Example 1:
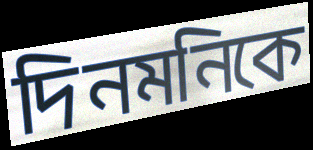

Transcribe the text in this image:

দিনমনিকে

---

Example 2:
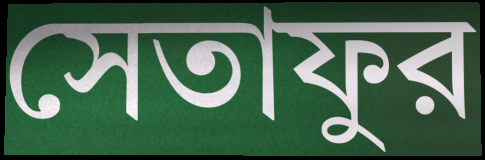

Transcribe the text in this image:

সেতাফুর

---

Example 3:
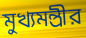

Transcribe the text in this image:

মুখ্যমন্ত্রীর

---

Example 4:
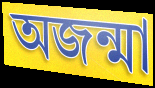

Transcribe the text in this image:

অজন্মা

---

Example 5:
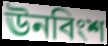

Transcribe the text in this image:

ঊনবিংশ